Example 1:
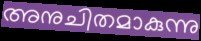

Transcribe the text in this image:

അനുചിതമാകുന്നു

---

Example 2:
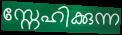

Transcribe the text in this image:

സ്നേഹിക്കുന്ന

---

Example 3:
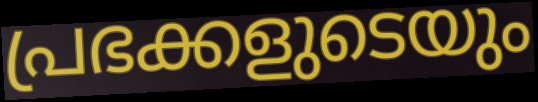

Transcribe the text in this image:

പ്രഭക്കളുടെയും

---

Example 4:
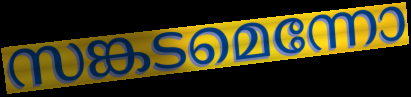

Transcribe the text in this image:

സങ്കടമെന്നോ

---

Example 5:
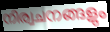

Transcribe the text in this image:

നിര്വചനങ്ങളും